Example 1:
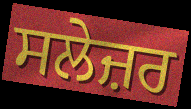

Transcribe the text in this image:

ਸਲੇਜ਼ਰ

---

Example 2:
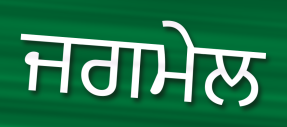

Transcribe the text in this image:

ਜਗਮੇਲ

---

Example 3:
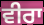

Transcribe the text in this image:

ਵੀਰਾ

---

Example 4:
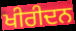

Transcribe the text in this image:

ਖੀਰੀਦਨ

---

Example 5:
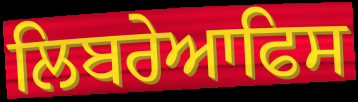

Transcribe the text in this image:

ਲਿਬਰੇਆਫਿਸ